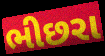
ભીછરા